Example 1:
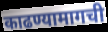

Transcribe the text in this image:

काढण्यामागची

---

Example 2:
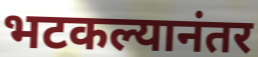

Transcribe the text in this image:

भटकल्यानंतर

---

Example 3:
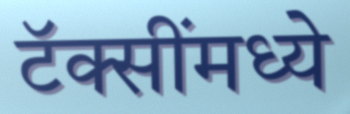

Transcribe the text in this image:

टॅक्सींमध्ये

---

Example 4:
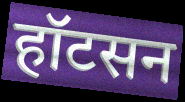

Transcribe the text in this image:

हॉटसन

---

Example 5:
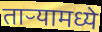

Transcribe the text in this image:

ताऱ्यामध्ये